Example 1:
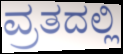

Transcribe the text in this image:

ವ್ರತದಲ್ಲಿ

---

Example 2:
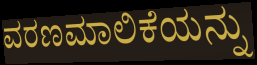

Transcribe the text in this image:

ವರಣಮಾಲಿಕೆಯನ್ನು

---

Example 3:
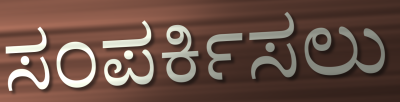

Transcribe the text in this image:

ಸಂಪರ್ಕಿಸಲು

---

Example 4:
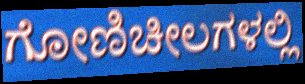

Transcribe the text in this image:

ಗೋಣಿಚೀಲಗಳಲ್ಲಿ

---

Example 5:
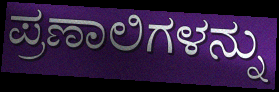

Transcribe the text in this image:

ಪ್ರಣಾಲಿಗಳನ್ನು